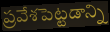
ప్రవేశపెట్టడాన్ని